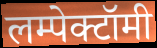
लम्पेक्टॉमी